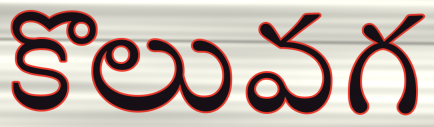
కొలువగ